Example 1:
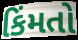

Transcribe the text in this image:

કિંમતો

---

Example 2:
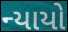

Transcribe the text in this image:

ન્યાયો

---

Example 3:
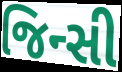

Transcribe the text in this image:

જિન્સી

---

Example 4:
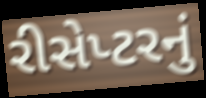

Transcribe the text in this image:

રીસેપ્ટરનું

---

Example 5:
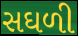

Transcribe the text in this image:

સઘળી